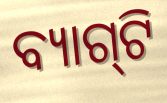
ବ୍ୟାଗ୍‌ଟି